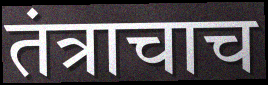
तंत्राचाच